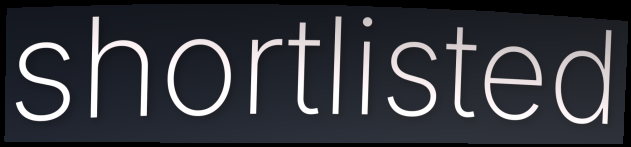
shortlisted